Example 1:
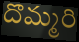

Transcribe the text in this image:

దొమ్మరి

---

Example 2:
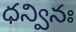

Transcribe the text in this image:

ధన్వినః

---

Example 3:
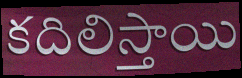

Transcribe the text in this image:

కదిలిస్తాయి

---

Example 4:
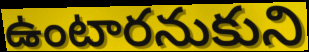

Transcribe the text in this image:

ఉంటారనుకుని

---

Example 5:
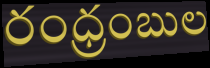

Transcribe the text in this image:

రంధ్రంబుల